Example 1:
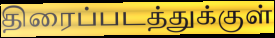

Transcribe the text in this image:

திரைப்படத்துக்குள்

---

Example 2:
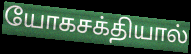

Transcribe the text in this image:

யோகசக்தியால்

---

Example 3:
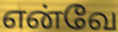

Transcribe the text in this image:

என்வே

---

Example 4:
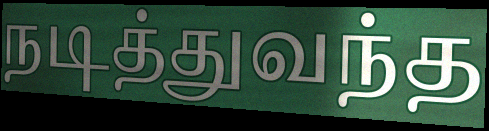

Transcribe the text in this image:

நடித்துவந்த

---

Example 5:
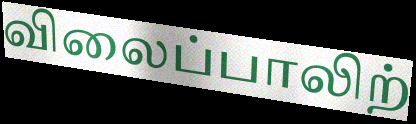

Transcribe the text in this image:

விலைப்பாலிற்